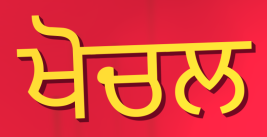
ਖੋਚਲ